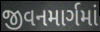
જીવનમાર્ગમાં